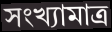
সংখ্যামাত্র